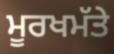
ਮੂਰਖਮੱਤੇ